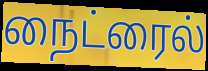
நைட்ரைல்